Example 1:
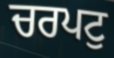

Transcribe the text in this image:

ਚਰਪਟੁ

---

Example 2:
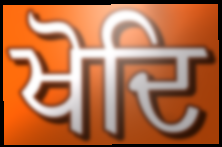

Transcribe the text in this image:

ਖੋਦਿ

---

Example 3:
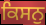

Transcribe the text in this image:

ਕਿਸਨੁ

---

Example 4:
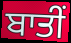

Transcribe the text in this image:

ਬਾਤੀਂ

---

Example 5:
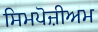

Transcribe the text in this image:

ਸਿਮਪੋਜ਼ੀਅਮ